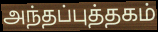
அந்தப்புத்தகம்